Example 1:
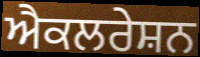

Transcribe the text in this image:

ਐਕਲਰੇਸ਼ਨ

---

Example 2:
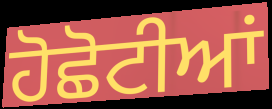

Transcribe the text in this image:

ਹੋਛੋਟੀਆਂ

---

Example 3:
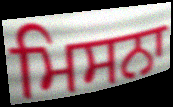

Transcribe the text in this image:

ਮਿਸਨਾ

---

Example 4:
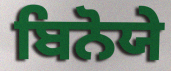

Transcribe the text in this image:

ਬਿਨੋਯੇ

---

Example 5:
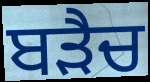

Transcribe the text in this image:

ਬੜੈਚ